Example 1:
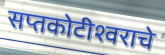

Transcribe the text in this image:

सप्तकोटीश्वराचे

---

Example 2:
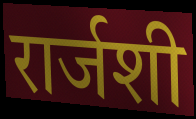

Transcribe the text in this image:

रार्जशी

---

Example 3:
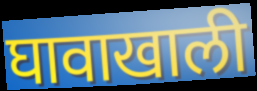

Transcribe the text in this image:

घावाखाली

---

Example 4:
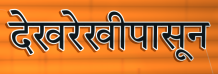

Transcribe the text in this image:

देखरेखीपासून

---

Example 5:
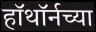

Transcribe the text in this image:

हॉथॉर्नच्या